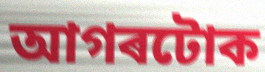
আগৰটোক